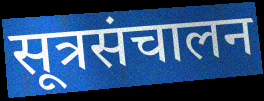
सूत्रसंचालन